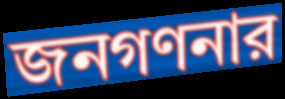
জনগণনার